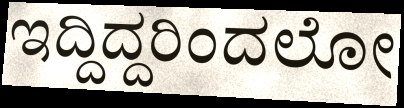
ಇದ್ದಿದ್ದರಿಂದಲೋ